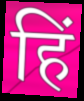
हिं